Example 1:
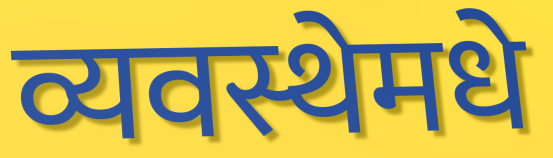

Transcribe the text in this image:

व्यवस्थेमधे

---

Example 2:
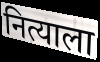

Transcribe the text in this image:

नित्याला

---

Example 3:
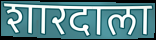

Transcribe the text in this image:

शारदाला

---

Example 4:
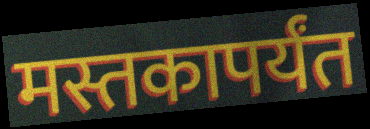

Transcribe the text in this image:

मस्तकापर्यंत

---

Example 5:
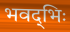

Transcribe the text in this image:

भवद्‌भिः